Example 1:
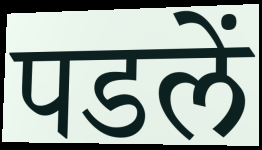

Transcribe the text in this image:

पडलें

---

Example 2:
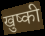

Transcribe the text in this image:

खुष्की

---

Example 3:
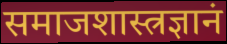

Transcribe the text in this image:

समाजशास्त्रज्ञानं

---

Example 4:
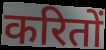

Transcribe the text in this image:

करितों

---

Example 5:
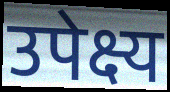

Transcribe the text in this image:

उपेक्ष्य